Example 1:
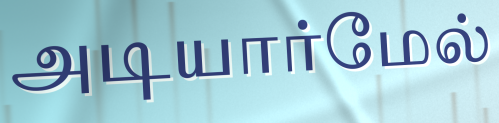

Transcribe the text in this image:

அடியார்மேல்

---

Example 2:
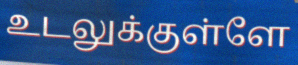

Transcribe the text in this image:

உடலுக்குள்ளே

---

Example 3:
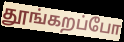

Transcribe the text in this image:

தூங்கறப்போ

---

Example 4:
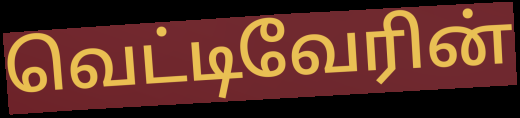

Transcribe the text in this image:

வெட்டிவேரின்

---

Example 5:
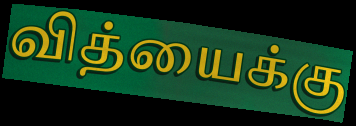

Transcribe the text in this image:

வித்யைக்கு